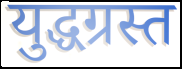
युद्धग्रस्त